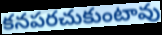
కనపరచుకుంటావు